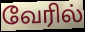
வேரில்